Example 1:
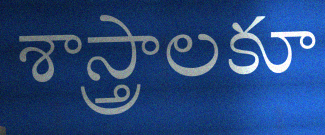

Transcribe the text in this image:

శాస్త్రాలకూ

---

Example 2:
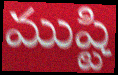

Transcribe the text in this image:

ముష్టి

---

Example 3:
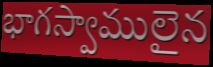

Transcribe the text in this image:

భాగస్వాములైన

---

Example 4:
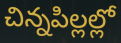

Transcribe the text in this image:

చిన్నపిల్లల్లో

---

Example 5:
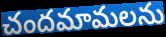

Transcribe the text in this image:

చందమామలను